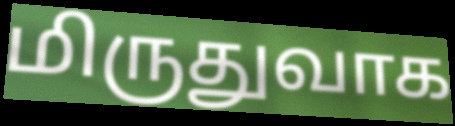
மிருதுவாக